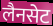
लैनसेट